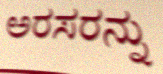
ಅರಸರನ್ನು